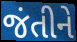
જંતીને